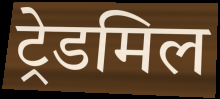
ट्रेडमिल